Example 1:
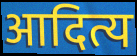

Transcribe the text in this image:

आदित्य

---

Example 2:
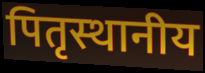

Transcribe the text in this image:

पितृस्थानीय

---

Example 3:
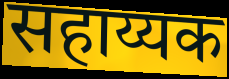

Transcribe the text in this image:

सहाय्यक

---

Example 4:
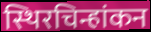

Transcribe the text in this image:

स्थिरचिन्हांकन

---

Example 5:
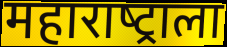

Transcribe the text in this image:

महाराष्ट्राला